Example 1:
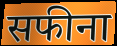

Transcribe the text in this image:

सफीना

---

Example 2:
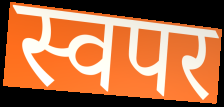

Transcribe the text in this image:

स्वपर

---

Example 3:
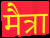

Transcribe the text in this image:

मैत्रा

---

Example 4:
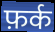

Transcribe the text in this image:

फ़र्क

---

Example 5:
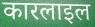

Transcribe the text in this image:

कारलाइल